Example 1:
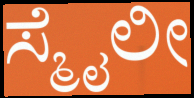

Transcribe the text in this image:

ಸ್ಮೈಲೀ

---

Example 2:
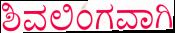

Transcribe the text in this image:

ಶಿವಲಿಂಗವಾಗಿ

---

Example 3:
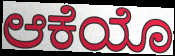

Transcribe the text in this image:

ಆಕೆಯೊ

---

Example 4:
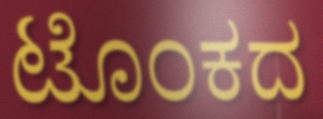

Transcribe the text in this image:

ಟೊಂಕದ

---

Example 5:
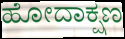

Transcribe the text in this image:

ಹೋದಾಕ್ಷಣ